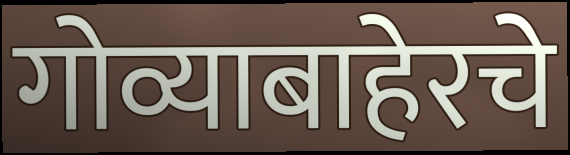
गोव्याबाहेरचे